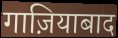
गाज़ियाबाद